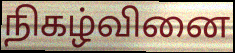
நிகழ்வினை